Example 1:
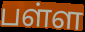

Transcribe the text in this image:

பள்ள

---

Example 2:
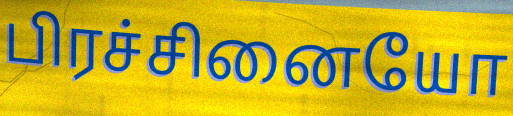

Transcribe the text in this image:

பிரச்சினையோ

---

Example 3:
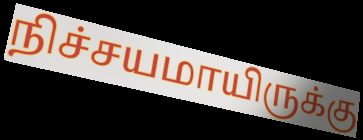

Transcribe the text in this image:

நிச்சயமாயிருக்கு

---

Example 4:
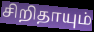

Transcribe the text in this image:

சிறிதாயும்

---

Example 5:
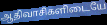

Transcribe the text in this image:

ஆதிவாசிகளிடையே